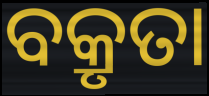
ବକ୍ରୃତା